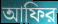
আফির